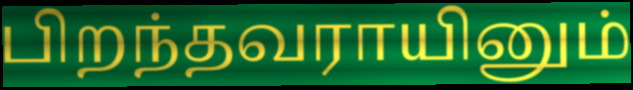
பிறந்தவராயினும்